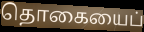
தொகையைப்